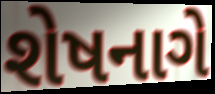
શેષનાગે